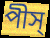
পীস্